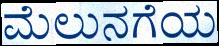
ಮೆಲುನಗೆಯ